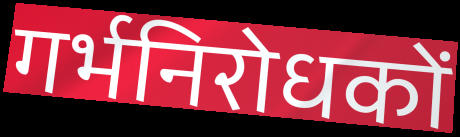
गर्भनिरोधकों